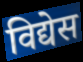
विद्येस